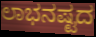
ಲಾಭನಷ್ಟದ